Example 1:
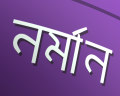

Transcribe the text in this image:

নর্মান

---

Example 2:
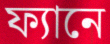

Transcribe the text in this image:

ফ্যানে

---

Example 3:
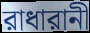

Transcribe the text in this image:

রাধারানী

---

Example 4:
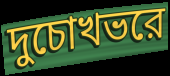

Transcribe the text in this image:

দুচোখভরে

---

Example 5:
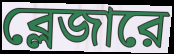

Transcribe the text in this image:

ব্লেজারে